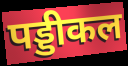
पड्डीकल